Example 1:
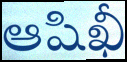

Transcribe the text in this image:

ఆషిఖీ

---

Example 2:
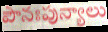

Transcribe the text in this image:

పౌనఃపున్యాలు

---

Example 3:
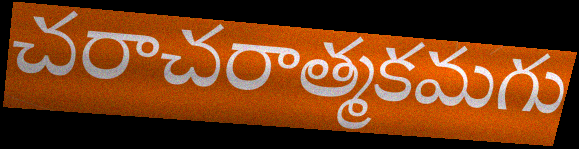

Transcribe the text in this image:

చరాచరాత్మకమగు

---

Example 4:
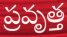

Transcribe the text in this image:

ప్రవృత్త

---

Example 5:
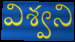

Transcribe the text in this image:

విశ్వని